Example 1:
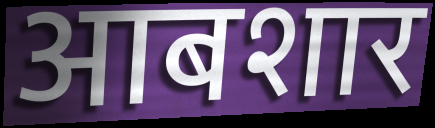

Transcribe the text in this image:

आबशार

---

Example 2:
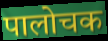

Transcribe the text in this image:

पालोचक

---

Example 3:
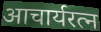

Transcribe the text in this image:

आचार्यरत्न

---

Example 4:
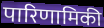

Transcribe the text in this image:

पारिणामिकी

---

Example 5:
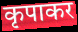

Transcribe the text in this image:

कृपाकर